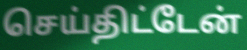
செய்திட்டேன்